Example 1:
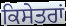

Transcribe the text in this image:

ਕਿਸੇਤਰਾਂ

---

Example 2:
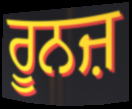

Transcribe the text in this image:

ਰੂਨਜ਼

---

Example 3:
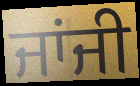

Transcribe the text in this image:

ਜਾਂਜੀ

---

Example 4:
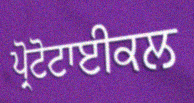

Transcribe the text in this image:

ਪ੍ਰੋਟੋਟਾਈਕਲ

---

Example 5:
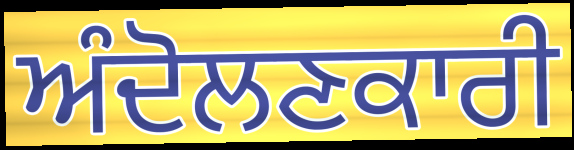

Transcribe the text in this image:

ਅੰਦੋਲਣਕਾਰੀ